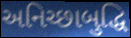
અનિચ્છાબુદ્ધિ